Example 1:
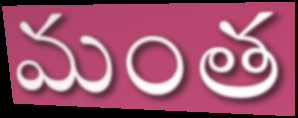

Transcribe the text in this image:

మంత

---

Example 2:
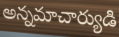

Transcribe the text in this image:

అన్నమాచార్యుడి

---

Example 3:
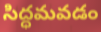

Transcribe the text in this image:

సిద్ధమవడం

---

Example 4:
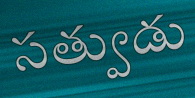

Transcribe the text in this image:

సత్వుడు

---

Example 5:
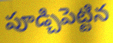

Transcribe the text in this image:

పూడ్చిపెట్టిన